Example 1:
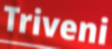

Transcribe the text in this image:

Triveni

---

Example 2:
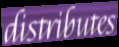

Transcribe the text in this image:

distributes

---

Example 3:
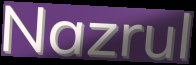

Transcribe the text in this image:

Nazrul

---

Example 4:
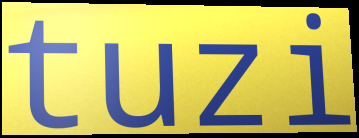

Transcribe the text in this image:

tuzi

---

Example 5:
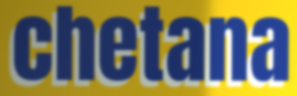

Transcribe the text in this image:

chetana